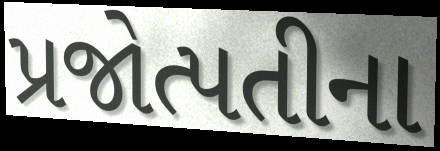
પ્રજોત્પતીના